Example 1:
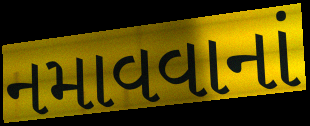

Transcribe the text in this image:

નમાવવાનાં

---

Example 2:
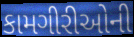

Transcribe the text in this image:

કામગીરીઓની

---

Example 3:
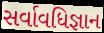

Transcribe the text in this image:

સર્વાવધિજ્ઞાન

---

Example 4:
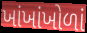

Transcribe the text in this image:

ખાંખાંખોળાં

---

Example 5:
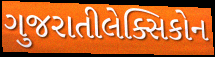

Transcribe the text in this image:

ગુજરાતીલેક્સિકોન